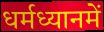
धर्मध्यानमें